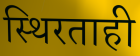
स्थिरताही